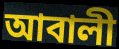
আবালী